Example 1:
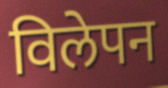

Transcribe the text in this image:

विलेपन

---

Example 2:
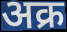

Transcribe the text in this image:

अक्र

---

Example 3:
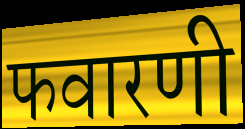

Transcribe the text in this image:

फवारणी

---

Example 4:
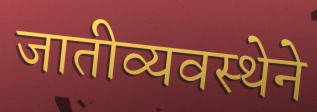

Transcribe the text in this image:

जातीव्यवस्थेने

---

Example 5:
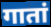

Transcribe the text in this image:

गातां